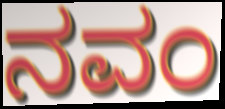
ನವಂ